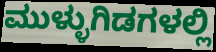
ಮುಳ್ಳುಗಿಡಗಳಲ್ಲಿ